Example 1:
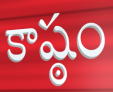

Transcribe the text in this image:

కాష్ఠం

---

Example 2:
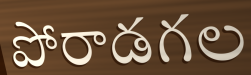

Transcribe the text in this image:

పోరాడగల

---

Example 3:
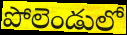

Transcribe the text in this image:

పోలెండులో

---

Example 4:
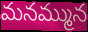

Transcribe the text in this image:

మనమ్మున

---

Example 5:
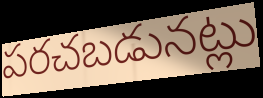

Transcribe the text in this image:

పరచబడునట్లు